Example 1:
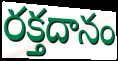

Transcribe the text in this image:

రక్తదానం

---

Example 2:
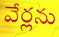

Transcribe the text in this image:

వేర్లను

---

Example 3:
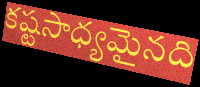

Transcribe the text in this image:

కష్టసాధ్యమైనది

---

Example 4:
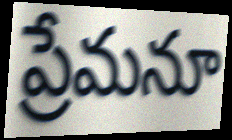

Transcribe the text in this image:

ప్రేమనూ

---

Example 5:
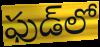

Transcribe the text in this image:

ఫుడ్‌లో